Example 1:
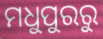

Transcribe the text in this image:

ମଧୁପୁରରୁ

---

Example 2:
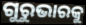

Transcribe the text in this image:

ଗୁରୁଭାରକୁ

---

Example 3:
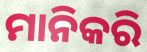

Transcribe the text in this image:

ମାନିକରି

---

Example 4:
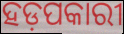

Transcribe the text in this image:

ହଡ଼ପକାରୀ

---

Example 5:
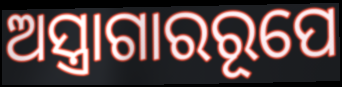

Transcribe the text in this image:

ଅସ୍ତ୍ରାଗାରରୂପେ